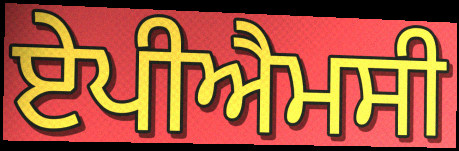
ਏਪੀਐਮਸੀ